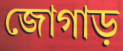
জোগাড়